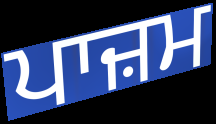
ਪਾਜ਼ਮ